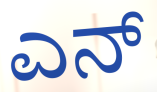
ಎನ್